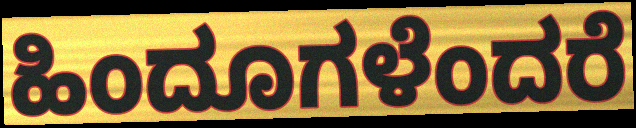
ಹಿಂದೂಗಳೆಂದರೆ